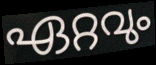
ഏറ്റവും